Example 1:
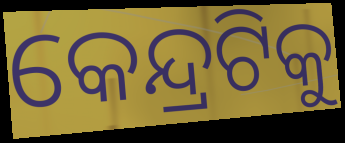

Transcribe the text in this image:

କେନ୍ଦ୍ରଟିକୁ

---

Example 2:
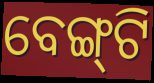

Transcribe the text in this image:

ବେଙ୍ଗ୍‌ଟି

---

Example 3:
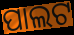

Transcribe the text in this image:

ପାଲଟ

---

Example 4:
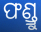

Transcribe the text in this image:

ଫଣ୍ଡ୍ରୁ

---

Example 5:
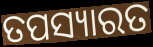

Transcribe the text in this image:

ତପସ୍ୟାରତ